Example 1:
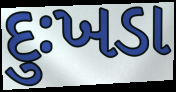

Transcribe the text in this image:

દુઃખડા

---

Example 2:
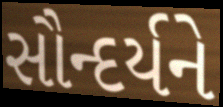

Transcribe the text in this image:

સૌન્દર્યને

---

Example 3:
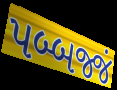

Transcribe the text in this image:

પબ્બજ્જં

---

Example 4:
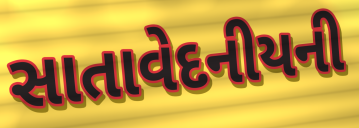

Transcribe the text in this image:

સાતાવેદનીયની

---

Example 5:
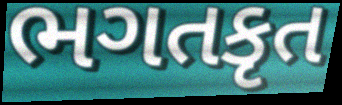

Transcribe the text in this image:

ભગતકૃત